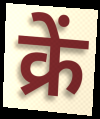
क्रें